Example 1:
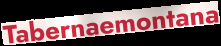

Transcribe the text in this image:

Tabernaemontana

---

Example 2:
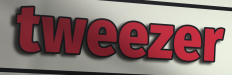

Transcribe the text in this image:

tweezer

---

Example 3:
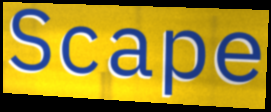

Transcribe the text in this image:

Scape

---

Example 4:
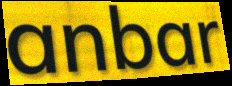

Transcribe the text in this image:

anbar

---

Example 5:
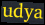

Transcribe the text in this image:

udya